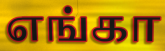
எங்கா